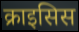
क्राइसिस